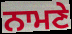
ਨਾਮਣੇ